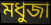
মধুজা